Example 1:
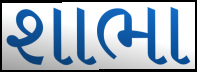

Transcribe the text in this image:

શાભા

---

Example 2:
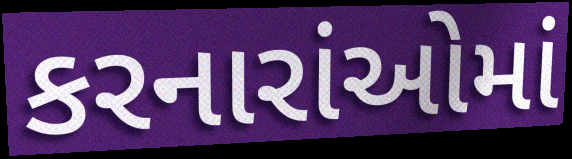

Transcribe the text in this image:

કરનારાંઓમાં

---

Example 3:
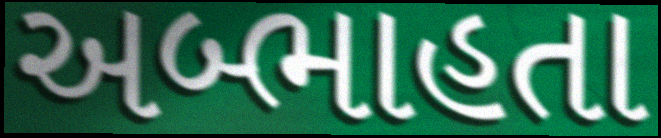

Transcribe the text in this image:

અબ્ભાહતા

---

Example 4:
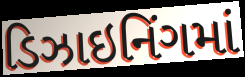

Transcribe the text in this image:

ડિઝાઇનિંગમાં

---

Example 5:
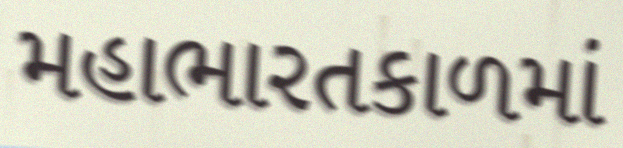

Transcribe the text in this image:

મહાભારતકાળમાં